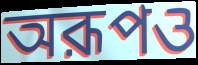
অরূপও